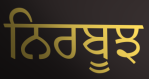
ਨਿਰਬੂਝ